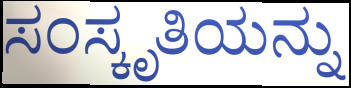
ಸಂಸ್ಕೃತಿಯನ್ನು